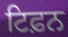
ਟਿਫ਼ਨ